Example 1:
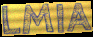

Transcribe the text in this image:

LMIA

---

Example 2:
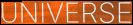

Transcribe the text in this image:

UNIVERSE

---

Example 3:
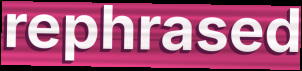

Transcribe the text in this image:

rephrased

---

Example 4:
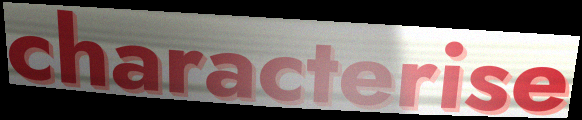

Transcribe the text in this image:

characterise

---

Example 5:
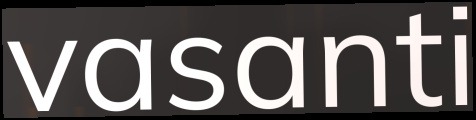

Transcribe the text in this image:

vasanti